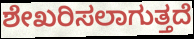
ಶೇಖರಿಸಲಾಗುತ್ತದೆ